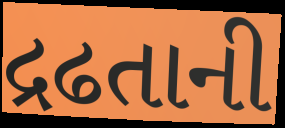
દ્રઢતાની